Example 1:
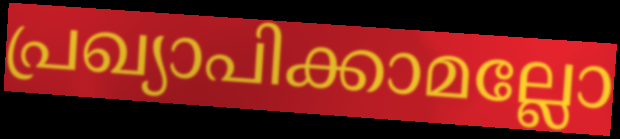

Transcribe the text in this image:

പ്രഖ്യാപിക്കാമല്ലോ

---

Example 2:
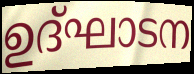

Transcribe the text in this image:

ഉദ്ഘാടന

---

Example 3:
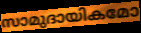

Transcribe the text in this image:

സാമുദായികമോ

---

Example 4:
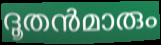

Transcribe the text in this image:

ദൂതൻമാരും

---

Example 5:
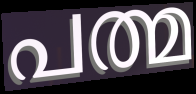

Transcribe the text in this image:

പത്മ